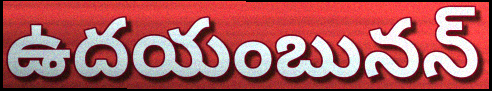
ఉదయంబునన్